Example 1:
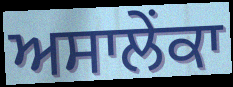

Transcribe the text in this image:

ਅਸਾਲੇਂਕਾ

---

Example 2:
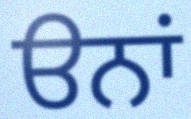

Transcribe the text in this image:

ੳਨਾਂ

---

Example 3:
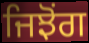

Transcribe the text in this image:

ਜਿਝੋਂਗ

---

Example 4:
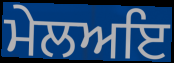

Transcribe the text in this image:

ਮੇਲਅਇ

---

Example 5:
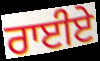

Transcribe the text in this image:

ਰਾਈਏ